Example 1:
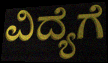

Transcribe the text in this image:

ವಿದ್ಯೆಗೆ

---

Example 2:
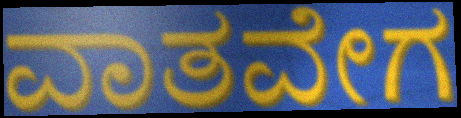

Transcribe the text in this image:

ವಾತವೇಗ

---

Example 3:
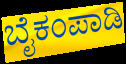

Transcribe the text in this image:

ಬೈಕಂಪಾಡಿ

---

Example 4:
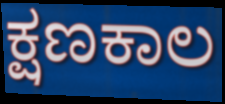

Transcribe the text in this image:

ಕ್ಷಣಕಾಲ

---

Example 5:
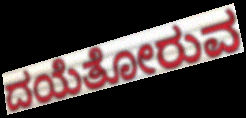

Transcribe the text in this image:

ದಯೆತೋರುವ